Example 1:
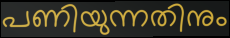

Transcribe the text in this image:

പണിയുന്നതിനും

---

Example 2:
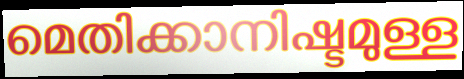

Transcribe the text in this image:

മെതിക്കാനിഷ്ടമുള്ള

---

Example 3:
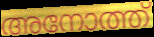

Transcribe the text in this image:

അനോത്ത്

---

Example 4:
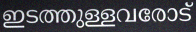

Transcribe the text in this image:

ഇടത്തുള്ളവരോട്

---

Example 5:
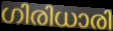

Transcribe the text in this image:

ഗിരിധാരി